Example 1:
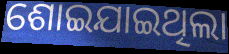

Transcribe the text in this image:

ଶୋଇଯାଇଥିଲା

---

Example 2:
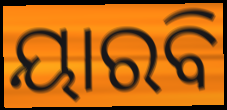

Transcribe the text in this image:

ୟାରବି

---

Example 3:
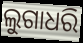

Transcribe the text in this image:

ଲୁଗାଧରି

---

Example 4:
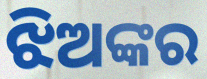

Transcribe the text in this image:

ଝିଅଙ୍କର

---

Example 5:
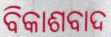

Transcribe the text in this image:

ବିକାଶବାଦ